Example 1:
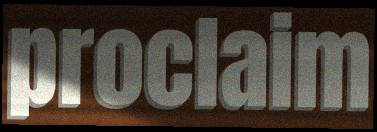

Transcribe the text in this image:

proclaim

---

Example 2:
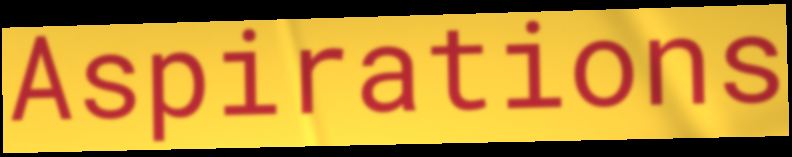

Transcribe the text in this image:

Aspirations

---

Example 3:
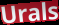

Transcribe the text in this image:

Urals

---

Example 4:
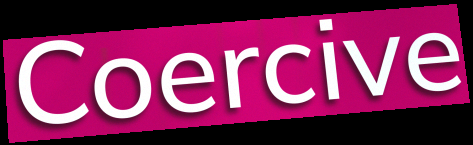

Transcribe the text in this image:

Coercive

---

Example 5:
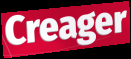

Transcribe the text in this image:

Creager